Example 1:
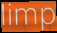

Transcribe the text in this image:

limp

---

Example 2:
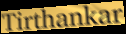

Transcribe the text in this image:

Tirthankar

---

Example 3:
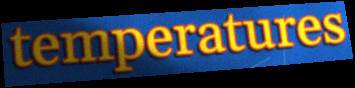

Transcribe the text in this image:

temperatures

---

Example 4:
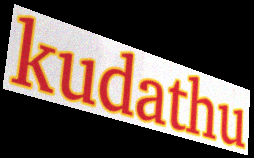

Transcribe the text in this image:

kudathu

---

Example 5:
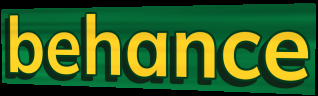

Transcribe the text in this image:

behance